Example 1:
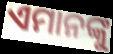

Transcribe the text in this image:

ଏମାନଙ୍କୁ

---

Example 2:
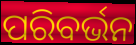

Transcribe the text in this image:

ପରିବର୍ଭନ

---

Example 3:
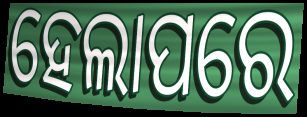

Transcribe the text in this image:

ହେଲାପରେ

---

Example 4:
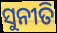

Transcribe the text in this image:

ସୁନୀତି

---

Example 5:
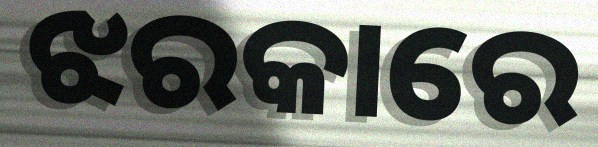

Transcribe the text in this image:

ଝରକାରେ